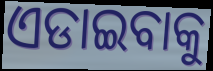
ଏଡାଇବାକୁ